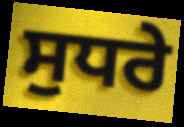
ਸੁਧਰੇ